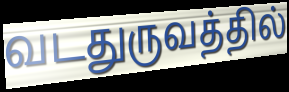
வடதுருவத்தில்